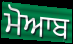
ਮੋਆਬ